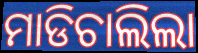
ମାଡିଚାଲିଲା